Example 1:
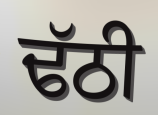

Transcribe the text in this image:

ਢੱਠੀ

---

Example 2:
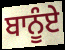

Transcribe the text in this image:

ਬਾਨੂੰਏ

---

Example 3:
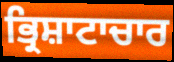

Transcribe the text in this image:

ਭ੍ਰਿਸ਼ਾਟਾਚਾਰ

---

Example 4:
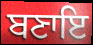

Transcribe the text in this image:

ਬਣਾਇ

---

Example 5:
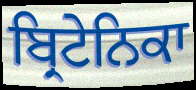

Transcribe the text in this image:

ਬ੍ਰਿਟੇਨਿਕਾ